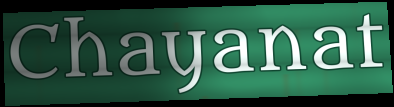
Chayanat